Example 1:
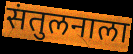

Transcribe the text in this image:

संतुलनाला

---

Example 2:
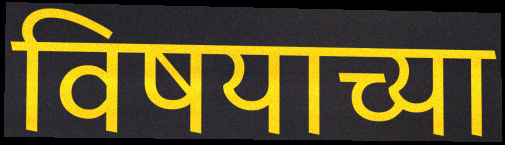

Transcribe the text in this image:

विषयाच्या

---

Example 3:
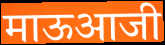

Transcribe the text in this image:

माऊआजी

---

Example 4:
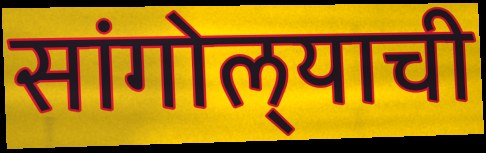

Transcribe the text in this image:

सांगोल्याची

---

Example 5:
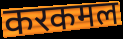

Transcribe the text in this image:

करकमल